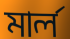
মার্ল